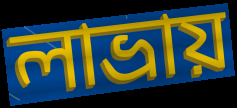
লাভ্ৰায়